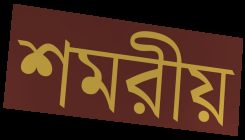
শমরীয়